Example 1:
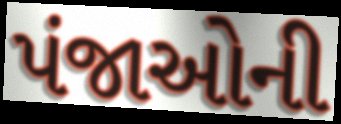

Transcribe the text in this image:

પંજાઓની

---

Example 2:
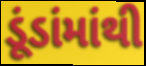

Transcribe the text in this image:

ડૂંડાંમાંથી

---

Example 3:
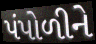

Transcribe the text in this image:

પંપોળીને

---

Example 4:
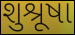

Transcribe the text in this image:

શુશ્રૂષા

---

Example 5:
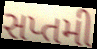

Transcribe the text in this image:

સપ્તમી